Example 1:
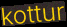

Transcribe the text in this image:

kottur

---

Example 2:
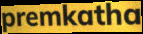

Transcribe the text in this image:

premkatha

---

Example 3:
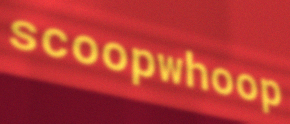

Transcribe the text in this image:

scoopwhoop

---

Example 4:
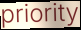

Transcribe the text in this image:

priority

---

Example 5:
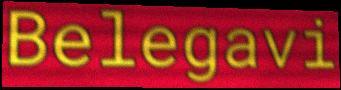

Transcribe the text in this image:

Belegavi